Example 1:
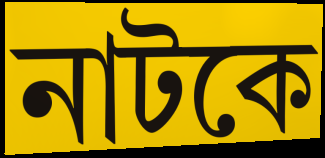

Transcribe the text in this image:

নাটকে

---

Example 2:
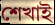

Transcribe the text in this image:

শেখাই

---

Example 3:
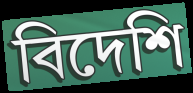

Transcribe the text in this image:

বিদেশি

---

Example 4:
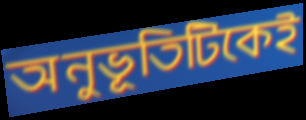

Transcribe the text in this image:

অনুভূতিটিকেই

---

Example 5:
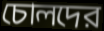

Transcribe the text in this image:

চোলদের